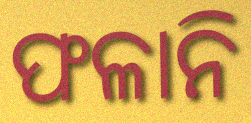
ଫଳାନି